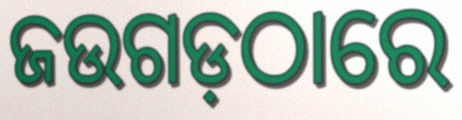
ଜଉଗଡ଼ଠାରେ